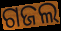
ଗଜଲ